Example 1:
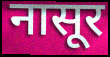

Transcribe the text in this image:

नासूर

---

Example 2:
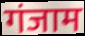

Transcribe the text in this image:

गंजाम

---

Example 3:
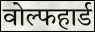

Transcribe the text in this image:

वोल्फहार्ड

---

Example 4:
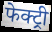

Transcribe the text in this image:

फेक्ट्री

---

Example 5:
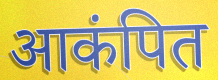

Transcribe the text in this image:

आकंपित